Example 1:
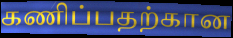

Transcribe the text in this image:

கணிப்பதற்கான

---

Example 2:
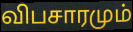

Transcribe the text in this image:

விபசாரமும்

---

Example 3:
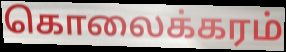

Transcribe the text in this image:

கொலைக்கரம்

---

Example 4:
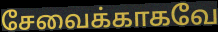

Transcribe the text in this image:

சேவைக்காகவே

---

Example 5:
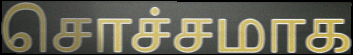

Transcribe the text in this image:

சொச்சமாக